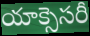
యాక్సెసరీ